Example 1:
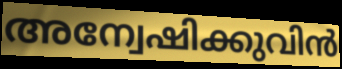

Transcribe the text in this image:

അന്വേഷിക്കുവിൻ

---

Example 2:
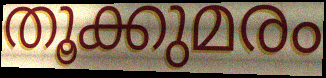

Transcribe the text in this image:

തൂക്കുമരം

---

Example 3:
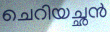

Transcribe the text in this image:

ചെറിയച്ഛൻ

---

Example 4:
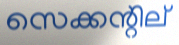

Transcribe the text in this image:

സെക്കന്റില്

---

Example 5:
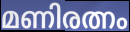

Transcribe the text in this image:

മണിരത്നം